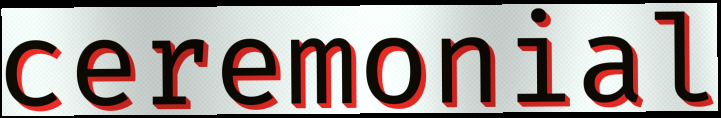
ceremonial